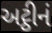
અટ્ઠીનં